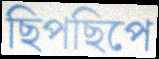
ছিপছিপে